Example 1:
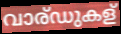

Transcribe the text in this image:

വാര്ഡുകള്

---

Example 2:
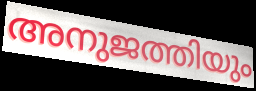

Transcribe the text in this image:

അനുജത്തിയും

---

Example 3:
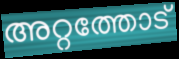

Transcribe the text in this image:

അറ്റത്തോട്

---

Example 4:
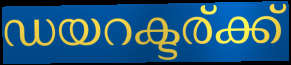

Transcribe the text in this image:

ഡയറക്ടര്ക്ക്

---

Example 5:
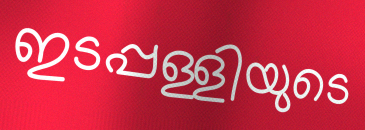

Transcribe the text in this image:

ഇടപ്പള്ളിയുടെ